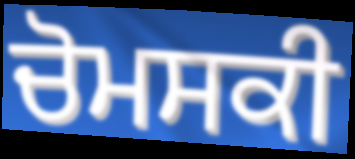
ਚੋਮਸਕੀ